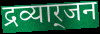
द्रव्यार्जन